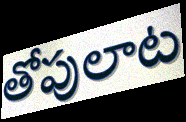
తోపులాట